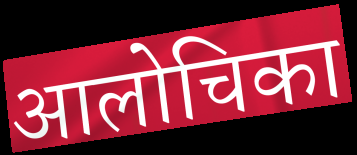
आलोचिका